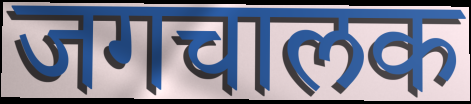
जगचालक